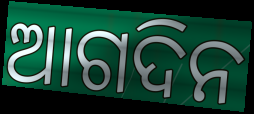
ଆଗଦିନ